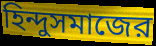
হিন্দুসমাজের